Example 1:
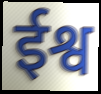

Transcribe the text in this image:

ईश्व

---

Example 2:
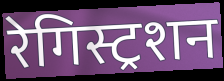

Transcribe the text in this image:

रेगिस्ट्रशन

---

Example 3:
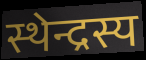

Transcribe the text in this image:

स्थेन्द्रस्य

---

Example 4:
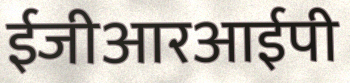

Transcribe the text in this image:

ईजीआरआईपी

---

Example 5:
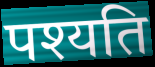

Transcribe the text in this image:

पश्यति